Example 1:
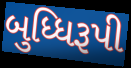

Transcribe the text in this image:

બુધ્ધિરૂપી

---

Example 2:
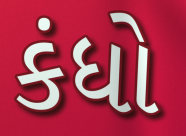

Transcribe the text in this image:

કંધો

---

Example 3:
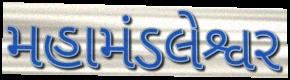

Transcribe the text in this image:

મહામંડલેશ્વર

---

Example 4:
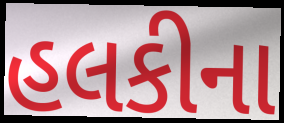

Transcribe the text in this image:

હલકીના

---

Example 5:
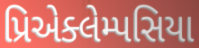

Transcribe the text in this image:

પ્રિએક્લેમ્પસિયા